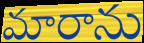
మారాను